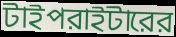
টাইপরাইটারের